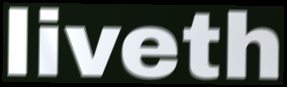
liveth